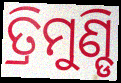
ତ୍ରିମୁଣ୍ଡି